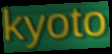
kyoto